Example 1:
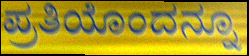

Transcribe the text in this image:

ಪ್ರತಿಯೊಂದನ್ನೂ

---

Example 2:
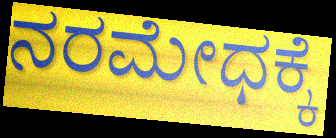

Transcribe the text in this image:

ನರಮೇಧಕ್ಕೆ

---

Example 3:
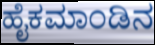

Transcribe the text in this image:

ಹೈಕಮಾಂಡಿನ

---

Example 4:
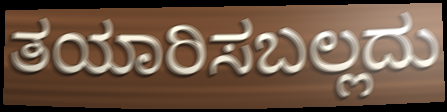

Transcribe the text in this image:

ತಯಾರಿಸಬಲ್ಲದು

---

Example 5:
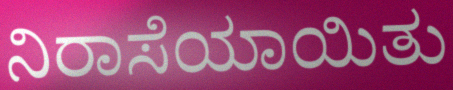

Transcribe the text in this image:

ನಿರಾಸೆಯಾಯಿತು